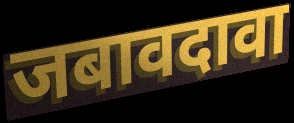
जबावदावा